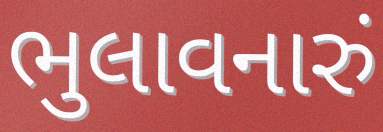
ભુલાવનારું